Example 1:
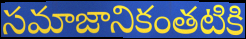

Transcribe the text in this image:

సమాజానికంతటికి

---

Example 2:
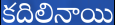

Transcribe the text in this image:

కదిలినాయి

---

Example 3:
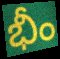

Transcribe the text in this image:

భీం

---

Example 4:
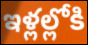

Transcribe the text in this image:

ఇళ్లల్లోకి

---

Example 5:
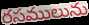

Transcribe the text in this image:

రసములును